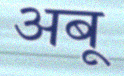
अबू